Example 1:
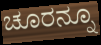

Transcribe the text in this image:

ಚೂರನ್ನೂ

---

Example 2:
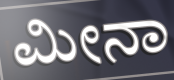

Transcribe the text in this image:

ಮೀನಾ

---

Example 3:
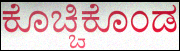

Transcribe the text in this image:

ಕೊಚ್ಚಿಕೊಂಡ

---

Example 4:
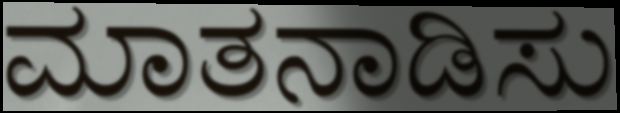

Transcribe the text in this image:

ಮಾತನಾಡಿಸು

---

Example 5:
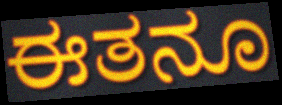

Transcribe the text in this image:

ಈತನೂ